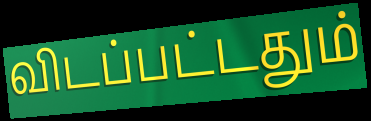
விடப்பட்டதும்